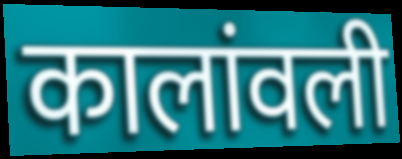
कालांवली